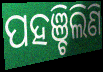
ପହଞ୍ଚିଲିଣି